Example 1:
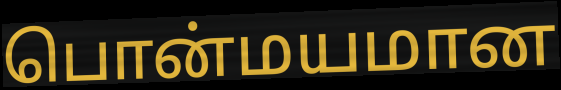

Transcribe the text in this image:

பொன்மயமான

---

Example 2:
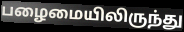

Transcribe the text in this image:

பழைமையிலிருந்து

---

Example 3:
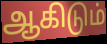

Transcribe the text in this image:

ஆகிடும்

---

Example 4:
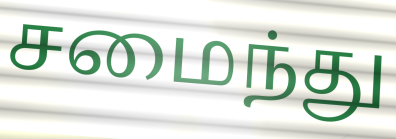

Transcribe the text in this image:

சமைந்து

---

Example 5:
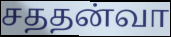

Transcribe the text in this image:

சததன்வா